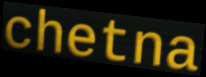
chetna